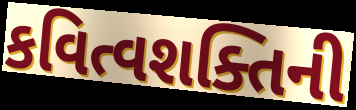
કવિત્વશક્તિની